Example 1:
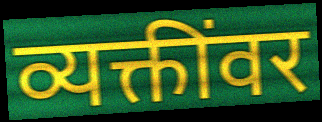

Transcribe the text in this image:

व्यक्तींवर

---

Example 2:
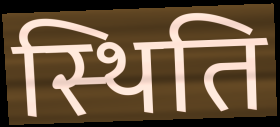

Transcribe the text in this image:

स्थिति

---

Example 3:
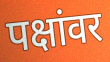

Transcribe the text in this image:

पक्षांवर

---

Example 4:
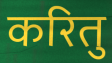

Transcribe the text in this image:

करितु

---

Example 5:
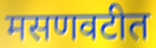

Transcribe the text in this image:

मसणवटीत